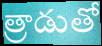
త్రాడుతో